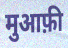
मुआफ़ी